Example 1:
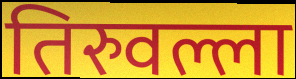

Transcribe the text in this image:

तिरुवल्ला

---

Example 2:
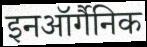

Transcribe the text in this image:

इनऑर्गैनिक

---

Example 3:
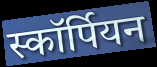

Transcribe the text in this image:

स्कॉर्पियन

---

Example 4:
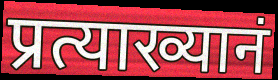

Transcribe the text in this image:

प्रत्याख्यानं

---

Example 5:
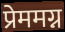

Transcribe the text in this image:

प्रेममग्न